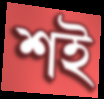
শই